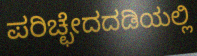
ಪರಿಚ್ಛೇದದಡಿಯಲ್ಲಿ